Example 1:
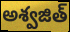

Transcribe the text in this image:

అశ్వజిత్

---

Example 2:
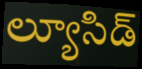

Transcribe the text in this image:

ల్యూసిడ్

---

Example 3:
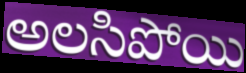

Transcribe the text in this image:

అలసిపోయి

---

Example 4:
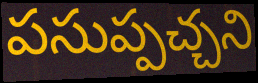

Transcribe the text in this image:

పసుప్పచ్చని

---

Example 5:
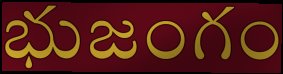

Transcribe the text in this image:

భుజంగం